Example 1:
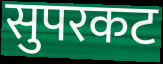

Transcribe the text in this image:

सुपरकट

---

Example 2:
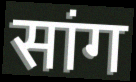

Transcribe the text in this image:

सांग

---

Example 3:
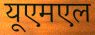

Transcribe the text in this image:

यूएमएल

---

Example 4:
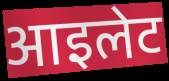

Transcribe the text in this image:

आइलेट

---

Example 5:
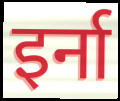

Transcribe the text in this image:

इर्ना